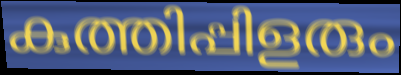
കുത്തിപ്പിളരും